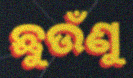
ଛୁଉଁଣୁ